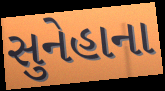
સુનેહાના